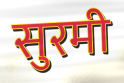
सुरमी